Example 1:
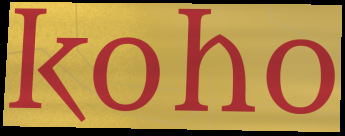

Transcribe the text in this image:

koho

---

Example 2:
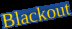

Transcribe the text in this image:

Blackout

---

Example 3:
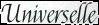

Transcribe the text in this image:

Universelle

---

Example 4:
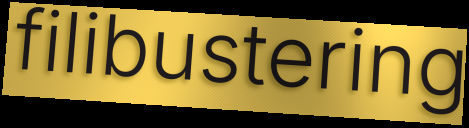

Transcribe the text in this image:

filibustering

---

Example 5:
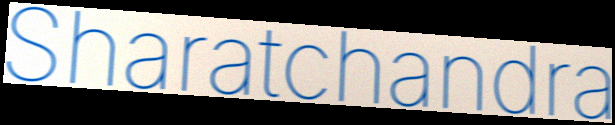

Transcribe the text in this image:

Sharatchandra